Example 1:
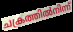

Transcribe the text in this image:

ചക്രത്തിൽനിന്ന്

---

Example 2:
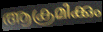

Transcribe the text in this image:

ആക്രമിക്കും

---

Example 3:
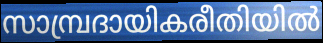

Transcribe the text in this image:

സാമ്പ്രദായികരീതിയിൽ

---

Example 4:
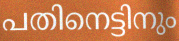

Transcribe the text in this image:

പതിനെട്ടിനും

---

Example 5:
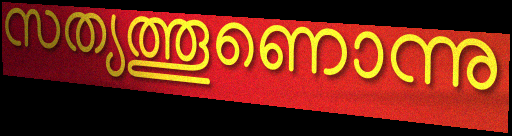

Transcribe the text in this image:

സത്യത്തൂണൊന്നു